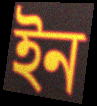
ইন